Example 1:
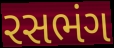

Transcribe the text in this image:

રસભંગ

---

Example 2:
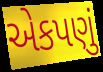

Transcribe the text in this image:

એકપણું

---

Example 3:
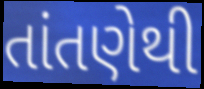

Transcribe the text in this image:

તાંતણેથી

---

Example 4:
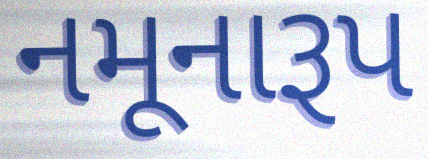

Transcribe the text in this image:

નમૂનારૂપ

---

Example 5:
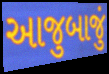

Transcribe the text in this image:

આજુબાજું